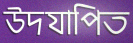
উদযাপিত